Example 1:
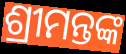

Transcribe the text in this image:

ଶ୍ରୀମନ୍ତଙ୍କ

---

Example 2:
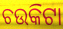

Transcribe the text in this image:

ଚଉକିଟା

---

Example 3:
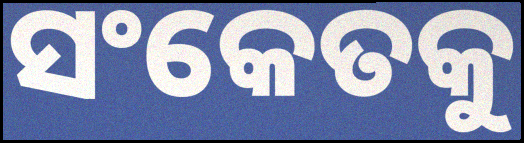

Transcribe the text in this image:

ସଂକେତକୁ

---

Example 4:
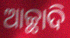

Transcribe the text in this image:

ଆଚ୍ଛାଦି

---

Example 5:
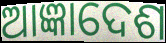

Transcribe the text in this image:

ଆଜ୍ଞାଦେଶ